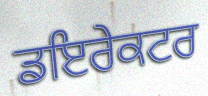
ਡਇਰੇਕਟਰ